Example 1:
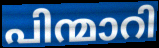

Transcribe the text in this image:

പിന്മാറി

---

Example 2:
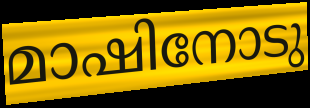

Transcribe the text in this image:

മാഷിനോടു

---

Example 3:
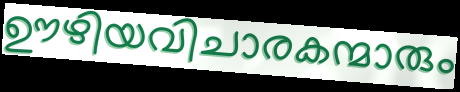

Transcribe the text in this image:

ഊഴിയവിചാരകന്മാരും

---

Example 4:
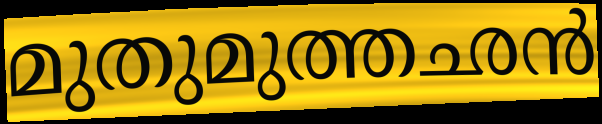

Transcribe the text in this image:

മുതുമുത്തഛൻ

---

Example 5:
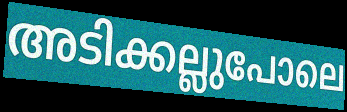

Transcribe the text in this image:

അടിക്കല്ലുപോലെ